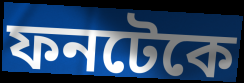
ফনটেকে